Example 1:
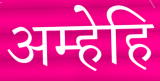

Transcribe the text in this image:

अम्हेहि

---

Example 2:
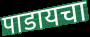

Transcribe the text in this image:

पाडायचा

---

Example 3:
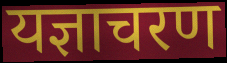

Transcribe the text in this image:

यज्ञाचरण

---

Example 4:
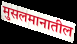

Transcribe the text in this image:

मुसलमानातील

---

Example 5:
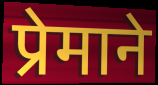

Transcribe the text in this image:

प्रेमाने